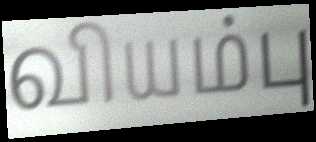
வியம்பு